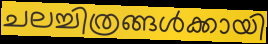
ചലച്ചിത്രങ്ങൾക്കായി